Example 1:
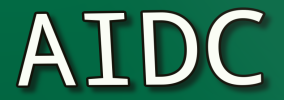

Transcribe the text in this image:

AIDC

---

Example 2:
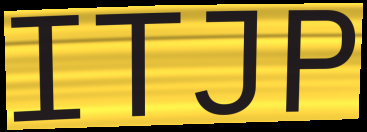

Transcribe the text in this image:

ITJP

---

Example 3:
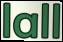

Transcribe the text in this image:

lall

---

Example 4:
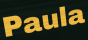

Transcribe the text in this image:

Paula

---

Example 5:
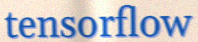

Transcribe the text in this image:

tensorflow